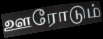
ஊரோடும்